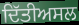
ਦਿੱਤੀਅਸਲ